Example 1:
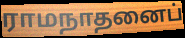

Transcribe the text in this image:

ராமநாதனைப்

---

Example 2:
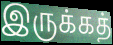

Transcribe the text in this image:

இருக்கத்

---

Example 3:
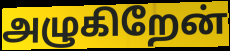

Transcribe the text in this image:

அழுகிறேன்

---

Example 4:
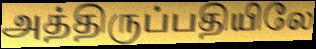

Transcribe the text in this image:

அத்திருப்பதியிலே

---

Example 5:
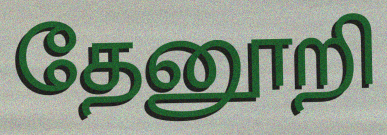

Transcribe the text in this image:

தேனூறி